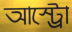
আস্ট্রো